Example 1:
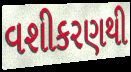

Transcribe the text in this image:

વશીકરણથી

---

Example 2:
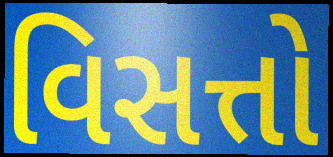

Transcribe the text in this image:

વિસત્તો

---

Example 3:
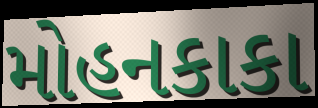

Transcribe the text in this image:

મોહનકાકા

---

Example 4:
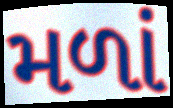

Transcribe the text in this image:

મળાં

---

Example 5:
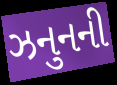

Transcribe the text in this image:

ઝનુનની